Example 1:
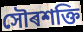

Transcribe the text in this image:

সৌৰশক্তি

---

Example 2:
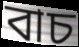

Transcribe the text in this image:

বাচ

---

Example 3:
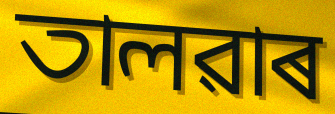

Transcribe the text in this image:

তালৱাৰ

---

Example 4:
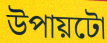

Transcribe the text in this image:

উপায়টো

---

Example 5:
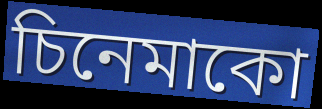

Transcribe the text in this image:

চিনেমাকো